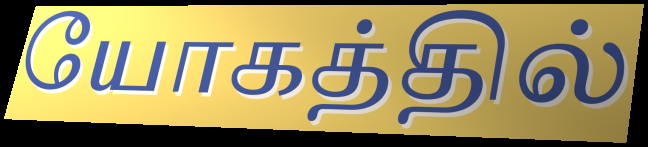
யோகத்தில்